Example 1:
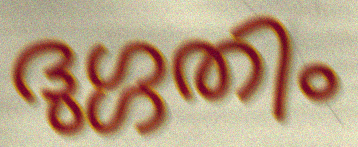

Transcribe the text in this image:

ദുഗ്ഗതിം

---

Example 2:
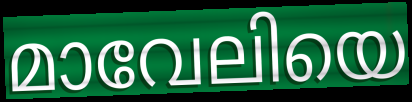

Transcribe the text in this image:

മാവേലിയെ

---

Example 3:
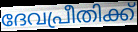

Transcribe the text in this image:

ദേവപ്രീതിക്ക്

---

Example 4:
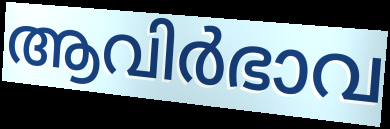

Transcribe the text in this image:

ആവിർഭാവ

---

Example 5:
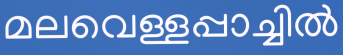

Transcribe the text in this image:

മലവെള്ളപ്പാച്ചിൽ